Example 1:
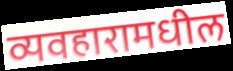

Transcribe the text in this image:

व्यवहारामधील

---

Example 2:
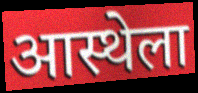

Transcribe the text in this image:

आस्थेला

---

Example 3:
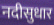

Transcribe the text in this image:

नदीसुधार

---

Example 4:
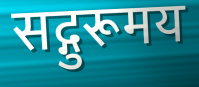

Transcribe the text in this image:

सद्गुरूमय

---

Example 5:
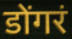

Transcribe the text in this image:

डोंगरं